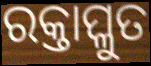
ରକ୍ତାପ୍ଳୁତ